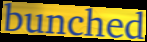
bunched